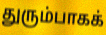
துரும்பாகக்